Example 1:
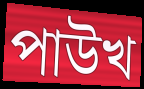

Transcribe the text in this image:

পাউখ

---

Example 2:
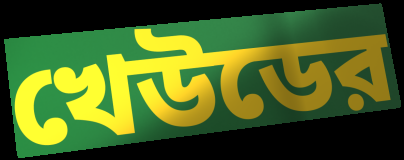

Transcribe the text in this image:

খেউডের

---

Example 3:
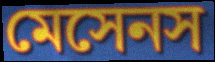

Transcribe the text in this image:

মেসেনস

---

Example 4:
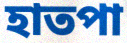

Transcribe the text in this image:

হাতপা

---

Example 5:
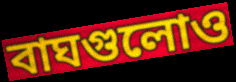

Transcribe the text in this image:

বাঘগুলোও